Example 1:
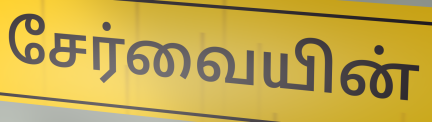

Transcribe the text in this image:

சேர்வையின்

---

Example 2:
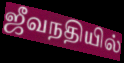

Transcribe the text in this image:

ஜீவநதியில்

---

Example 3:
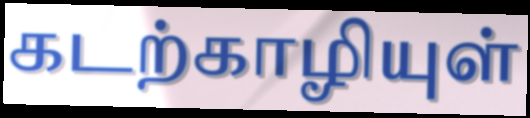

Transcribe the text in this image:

கடற்காழியுள்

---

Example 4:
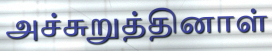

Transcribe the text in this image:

அச்சுறுத்தினாள்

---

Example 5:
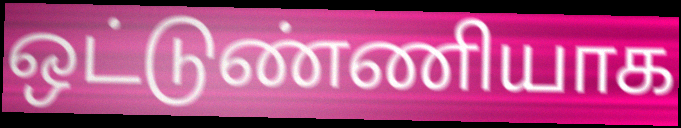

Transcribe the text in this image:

ஒட்டுண்ணியாக